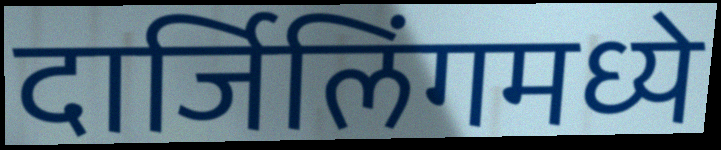
दार्जिलिंगमध्ये